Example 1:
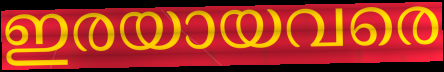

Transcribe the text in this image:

ഇരയായവരെ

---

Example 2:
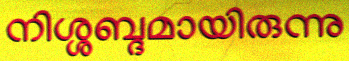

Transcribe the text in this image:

നിശ്ശബ്ദമായിരുന്നു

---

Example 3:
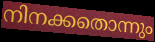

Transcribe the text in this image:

നിനക്കതൊന്നും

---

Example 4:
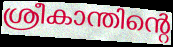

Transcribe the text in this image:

ശ്രീകാന്തിന്റെ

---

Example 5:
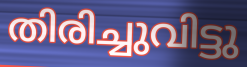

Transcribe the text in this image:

തിരിച്ചുവിട്ടു